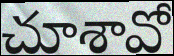
చూశావో